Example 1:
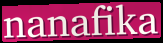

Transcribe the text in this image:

nanafika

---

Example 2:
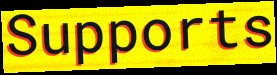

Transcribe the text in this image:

Supports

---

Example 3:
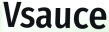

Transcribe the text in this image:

Vsauce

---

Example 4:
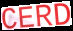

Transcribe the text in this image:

CERD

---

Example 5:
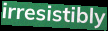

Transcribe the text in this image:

irresistibly